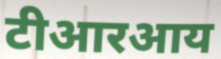
टीआरआय